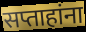
सप्ताहांना